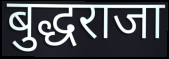
बुद्धराजा